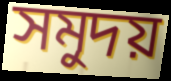
সমুদয়